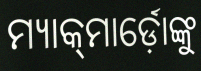
ମ୍ୟାକ୍‍ମାର୍ଡ଼ୋଙ୍କୁ